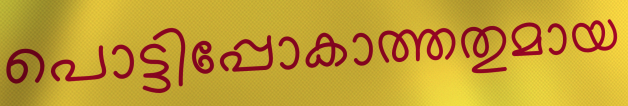
പൊട്ടിപ്പോകാത്തതുമായ